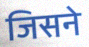
जिसने